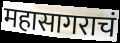
महासागराचं